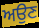
ਅਉਣ